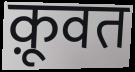
क़ूवत